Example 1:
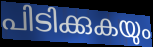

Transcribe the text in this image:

പിടിക്കുകയും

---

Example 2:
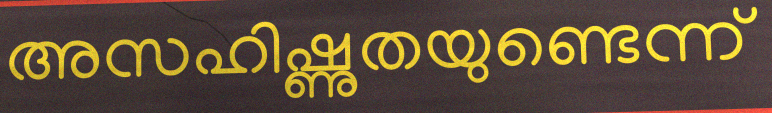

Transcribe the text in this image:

അസഹിഷ്ണുതയുണ്ടെന്ന്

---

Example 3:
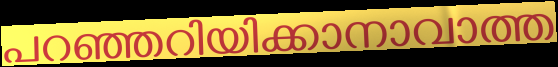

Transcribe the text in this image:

പറഞ്ഞറിയിക്കാനാവാത്ത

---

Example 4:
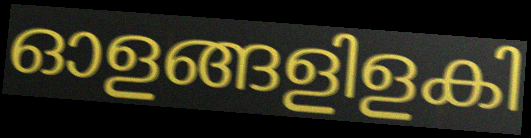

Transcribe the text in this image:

ഓളങ്ങളിളകി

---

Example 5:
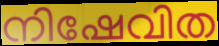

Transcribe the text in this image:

നിഷേവിത